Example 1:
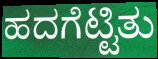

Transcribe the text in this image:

ಹದಗೆಟ್ಟಿತು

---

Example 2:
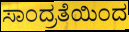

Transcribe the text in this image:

ಸಾಂದ್ರತೆಯಿಂದ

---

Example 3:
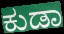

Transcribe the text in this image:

ಕುಡಾ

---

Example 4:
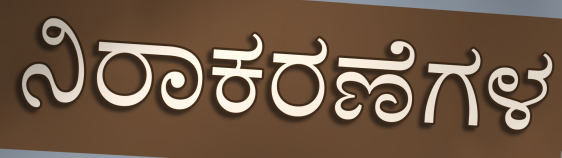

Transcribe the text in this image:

ನಿರಾಕರಣೆಗಳ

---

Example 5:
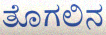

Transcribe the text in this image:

ತೊಗಲಿನ